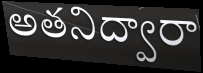
అతనిద్వారా